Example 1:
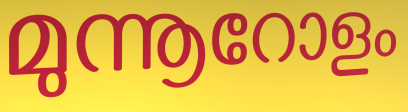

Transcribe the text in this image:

മുന്നൂറോളം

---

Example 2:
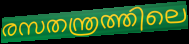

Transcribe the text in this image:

രസതന്ത്രത്തിലെ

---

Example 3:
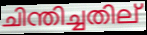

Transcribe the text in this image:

ചിന്തിച്ചതില്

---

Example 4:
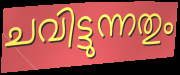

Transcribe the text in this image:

ചവിട്ടുന്നതും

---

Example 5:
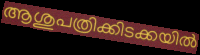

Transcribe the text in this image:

ആശുപത്രിക്കിടക്കയിൽ